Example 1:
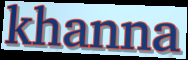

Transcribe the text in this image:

khanna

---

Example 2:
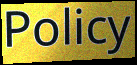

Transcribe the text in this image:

Policy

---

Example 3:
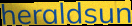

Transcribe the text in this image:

heraldsun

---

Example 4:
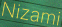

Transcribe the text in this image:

Nizami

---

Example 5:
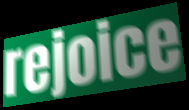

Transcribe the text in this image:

rejoice